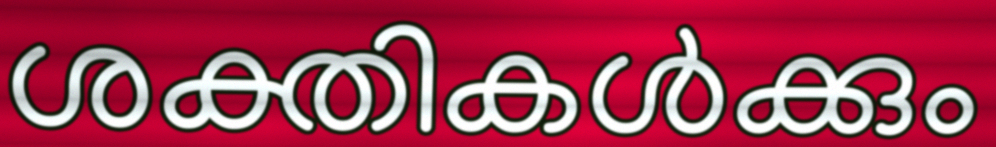
ശക്തികൾക്കും